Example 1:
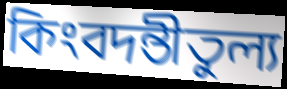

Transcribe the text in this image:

কিংবদন্তীতুল্য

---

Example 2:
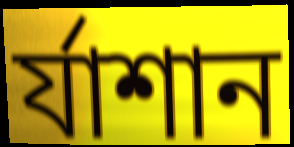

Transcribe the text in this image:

র্যাশান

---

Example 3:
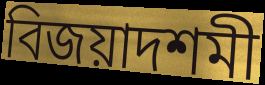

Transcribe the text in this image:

বিজয়াদশমী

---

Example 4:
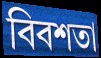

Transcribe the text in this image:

বিবশতা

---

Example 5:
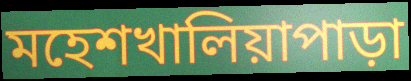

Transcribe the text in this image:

মহেশখালিয়াপাড়া